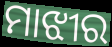
ମାଝୀର